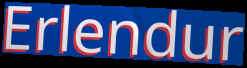
Erlendur